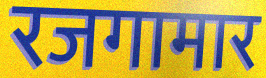
रजगामार